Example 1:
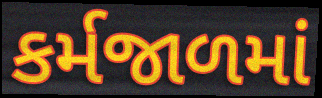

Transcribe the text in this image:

કર્મજાળમાં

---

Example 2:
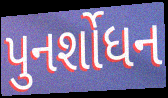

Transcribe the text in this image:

પુનર્શોધન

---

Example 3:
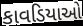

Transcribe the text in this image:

કાવડિયાઓ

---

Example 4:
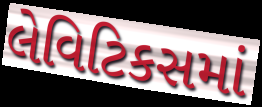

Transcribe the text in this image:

લેવિટિકસમાં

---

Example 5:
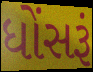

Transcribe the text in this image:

ધોંસરૂં